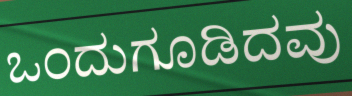
ಒಂದುಗೂಡಿದವು